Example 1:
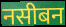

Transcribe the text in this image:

नसीबन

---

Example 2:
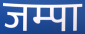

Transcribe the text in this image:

जम्पा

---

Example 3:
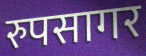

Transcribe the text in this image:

रुपसागर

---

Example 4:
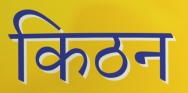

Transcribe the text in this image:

किठन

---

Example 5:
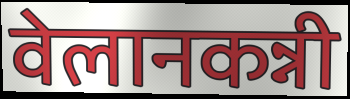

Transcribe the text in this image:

वेलानकन्नी